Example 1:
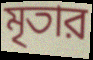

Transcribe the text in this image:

মৃতার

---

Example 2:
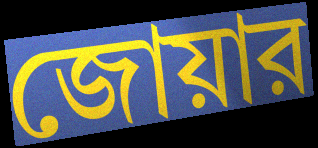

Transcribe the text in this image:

জোয়ার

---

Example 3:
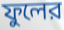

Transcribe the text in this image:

ফুলের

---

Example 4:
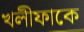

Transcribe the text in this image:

খলীফাকে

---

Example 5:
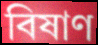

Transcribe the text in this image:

বিষাণ